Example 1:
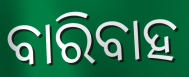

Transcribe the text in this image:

ବାରିବାହ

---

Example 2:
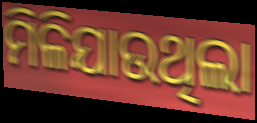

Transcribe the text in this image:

ମିଳିଯାଉଥିଲା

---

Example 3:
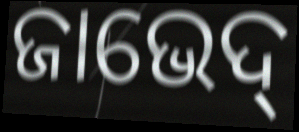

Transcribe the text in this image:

ଜାଭେଦ୍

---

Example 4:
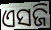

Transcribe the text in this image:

ଏସଜି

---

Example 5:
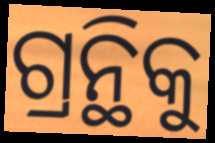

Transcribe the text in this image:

ଗ୍ରନ୍ଥିକୁ